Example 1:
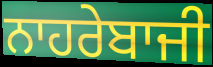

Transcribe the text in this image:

ਨਾਹਰੇਬਾਜੀ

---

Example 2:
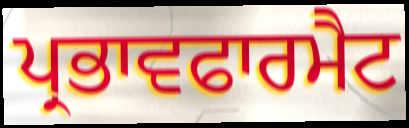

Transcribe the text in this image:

ਪ੍ਰਭਾਵਫਾਰਮੈਟ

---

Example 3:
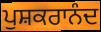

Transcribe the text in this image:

ਪੁਸ਼ਕਰਾਨੰਦ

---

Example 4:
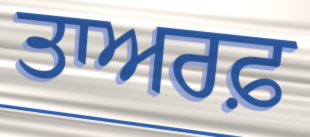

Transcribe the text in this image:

ਤਾਅਰਫ਼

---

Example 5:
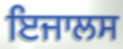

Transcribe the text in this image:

ਇਜਾਲਸ